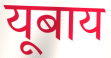
यूबाय